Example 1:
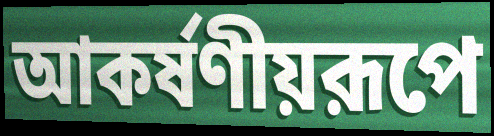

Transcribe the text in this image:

আকর্ষণীয়রূপে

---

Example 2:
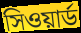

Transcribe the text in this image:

সিওয়ার্ড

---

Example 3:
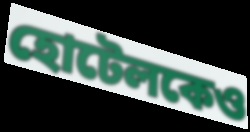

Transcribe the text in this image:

হোটেলকেও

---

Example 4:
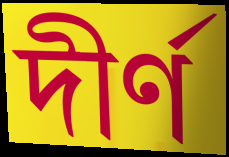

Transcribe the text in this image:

দীর্ণ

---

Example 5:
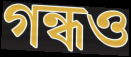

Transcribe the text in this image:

গন্ধও